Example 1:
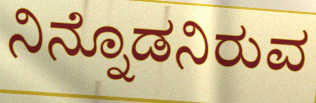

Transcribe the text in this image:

ನಿನ್ನೊಡನಿರುವ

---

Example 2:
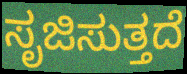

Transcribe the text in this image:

ಸೃಜಿಸುತ್ತದೆ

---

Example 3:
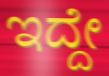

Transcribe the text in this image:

ಇದ್ದೇ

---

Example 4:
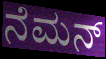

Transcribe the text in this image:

ನೆಮನ್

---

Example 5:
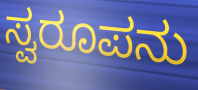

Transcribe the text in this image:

ಸ್ವರೂಪನು